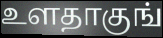
உளதாகுங்